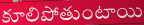
కూలిపోతుంటాయి